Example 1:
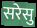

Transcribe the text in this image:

सरेसु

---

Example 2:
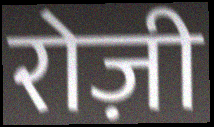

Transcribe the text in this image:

रोज़ी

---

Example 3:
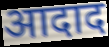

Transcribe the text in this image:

आदाद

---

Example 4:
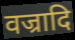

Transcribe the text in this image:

वज्रादि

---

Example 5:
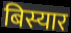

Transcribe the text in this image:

बिस्यार